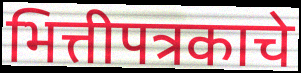
भित्तीपत्रकाचे